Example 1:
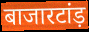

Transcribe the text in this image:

बाजारटांड़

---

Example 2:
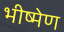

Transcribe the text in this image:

भीष्मेण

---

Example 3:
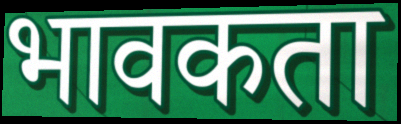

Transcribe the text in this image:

भावकता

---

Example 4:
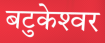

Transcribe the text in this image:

बटुकेश्‍वर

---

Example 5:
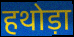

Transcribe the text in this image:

हथोड़ा